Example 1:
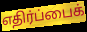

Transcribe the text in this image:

எதிர்ப்பைக்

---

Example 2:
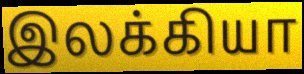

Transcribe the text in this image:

இலக்கியா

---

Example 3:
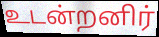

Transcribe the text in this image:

உடன்றனிர்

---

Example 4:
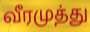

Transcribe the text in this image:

வீரமுத்து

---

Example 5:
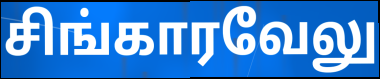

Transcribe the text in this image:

சிங்காரவேலு